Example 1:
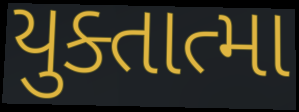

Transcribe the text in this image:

યુક્તાત્મા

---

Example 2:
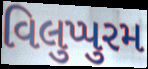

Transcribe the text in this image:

વિલુપ્પુરમ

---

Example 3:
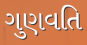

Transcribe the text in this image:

ગુણવતિ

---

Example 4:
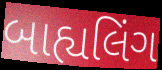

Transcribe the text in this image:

બાહ્યલિંગ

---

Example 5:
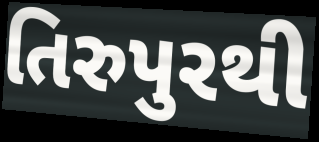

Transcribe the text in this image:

તિરુપુરથી